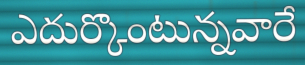
ఎదుర్కొంటున్నవారే